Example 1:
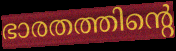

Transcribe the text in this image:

ഭാരതത്തിന്റെ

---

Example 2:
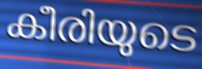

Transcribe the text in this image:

കീരിയുടെ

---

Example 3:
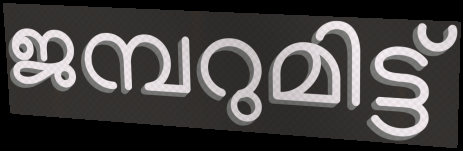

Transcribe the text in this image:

ജമ്പറുമിട്ട്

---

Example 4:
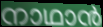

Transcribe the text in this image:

നാഥാൻ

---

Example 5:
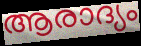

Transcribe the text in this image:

ആരാദ്യം